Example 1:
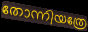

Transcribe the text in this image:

തോന്നിയത്രേ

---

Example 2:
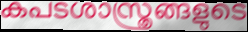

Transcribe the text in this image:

കപടശാസ്ത്രങ്ങളുടെ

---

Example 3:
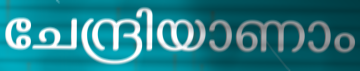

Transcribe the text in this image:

ചേന്ദ്രിയാണാം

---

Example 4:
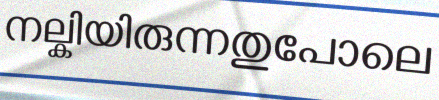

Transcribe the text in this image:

നല്കിയിരുന്നതുപോലെ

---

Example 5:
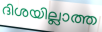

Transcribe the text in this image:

ദിശയില്ലാത്ത